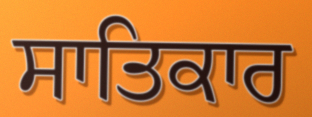
ਸਾਤਿਕਾਰ